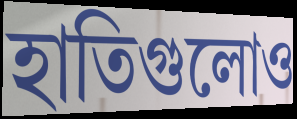
হাতিগুলোও